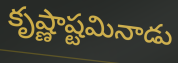
కృష్ణాష్టమినాడు